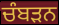
ਚੰਬੜਨ